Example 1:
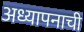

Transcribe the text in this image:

अध्यापनाची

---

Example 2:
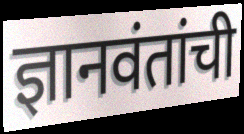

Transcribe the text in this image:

ज्ञानवंतांची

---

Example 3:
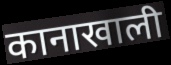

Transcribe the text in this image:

कानाखाली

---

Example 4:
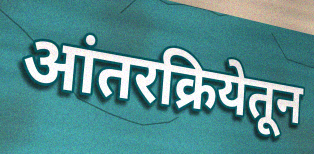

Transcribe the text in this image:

आंतरक्रियेतून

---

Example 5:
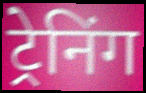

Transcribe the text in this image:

ट्रेनिंग